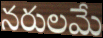
నరులమే